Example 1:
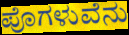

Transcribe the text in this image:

ಪೊಗಳುವೆನು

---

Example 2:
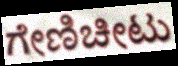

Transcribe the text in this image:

ಗೇಣಿಚೀಟು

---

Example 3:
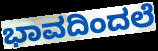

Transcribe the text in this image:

ಭಾವದಿಂದಲೆ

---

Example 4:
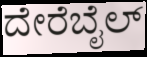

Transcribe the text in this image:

ದೇರೆಬೈಲ್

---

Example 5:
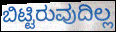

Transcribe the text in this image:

ಬಿಟ್ಟಿರುವುದಿಲ್ಲ